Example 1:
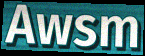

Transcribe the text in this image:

Awsm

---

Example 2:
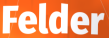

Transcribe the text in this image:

Felder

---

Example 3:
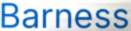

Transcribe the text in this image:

Barness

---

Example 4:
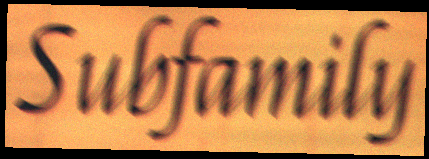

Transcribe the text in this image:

Subfamily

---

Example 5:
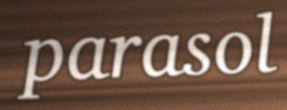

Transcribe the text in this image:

parasol